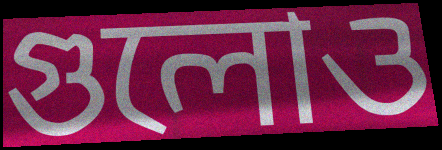
গুলোও